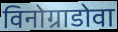
विनोग्राडोवा